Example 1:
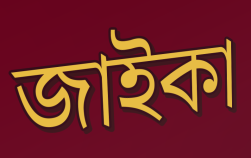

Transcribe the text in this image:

জাইকা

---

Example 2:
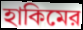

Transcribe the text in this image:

হাকিমের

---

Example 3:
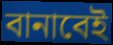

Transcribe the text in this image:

বানাবেই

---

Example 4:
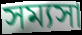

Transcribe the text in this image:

সম্যসা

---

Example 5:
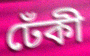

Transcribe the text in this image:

ঢেঁকী